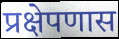
प्रक्षेपणास